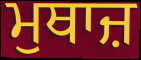
ਮੁਥਾਜ਼